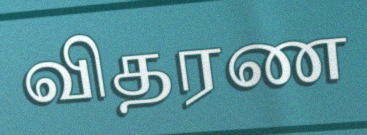
விதரண